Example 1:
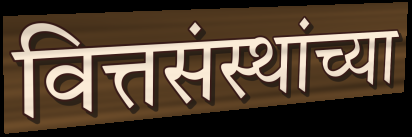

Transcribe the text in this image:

वित्तसंस्थांच्या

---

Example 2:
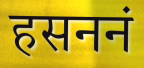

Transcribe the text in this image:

हसननं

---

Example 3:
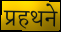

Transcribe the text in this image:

प्रहथने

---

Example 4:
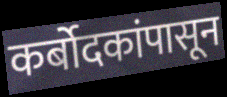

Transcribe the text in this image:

कर्बोदकांपासून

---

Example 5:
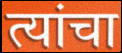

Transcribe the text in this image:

त्‍यांचा